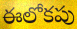
ఈలోకపు